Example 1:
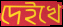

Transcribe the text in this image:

দেইখে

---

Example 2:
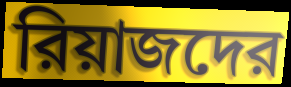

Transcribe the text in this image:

রিয়াজদের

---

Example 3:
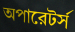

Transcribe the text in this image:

অপারেটর্স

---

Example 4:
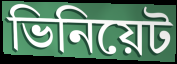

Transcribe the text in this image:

ভিনিয়েট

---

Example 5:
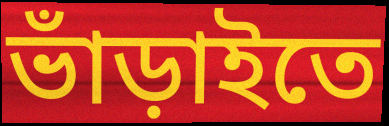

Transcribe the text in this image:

ভাঁড়াইতে